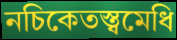
নচিকেতস্ত্বমেধি